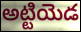
అట్టియెడ